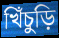
খিঁচুড়ি